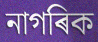
নাগৰিক